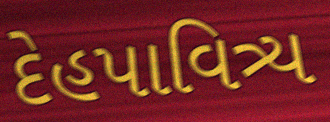
દેહપાવિત્ર્ય